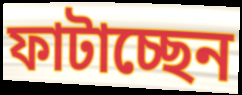
ফাটাচ্ছেন